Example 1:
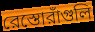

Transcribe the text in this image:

রেস্তোরাঁগুলি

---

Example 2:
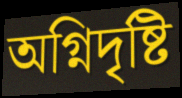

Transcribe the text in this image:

অগ্নিদৃষ্টি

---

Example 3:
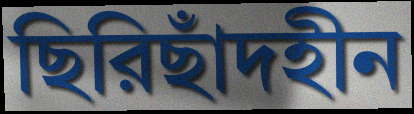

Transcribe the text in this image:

ছিরিছাঁদহীন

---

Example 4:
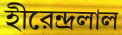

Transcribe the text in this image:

হীরেন্দ্রলাল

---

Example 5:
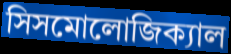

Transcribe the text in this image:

সিসমোলোজিক্যাল